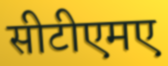
सीटीएमए